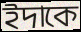
ইদাকে